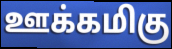
ஊக்கமிகு